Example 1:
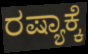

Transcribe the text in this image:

ರಷ್ಯಾಕ್ಕೆ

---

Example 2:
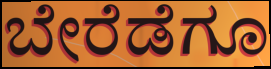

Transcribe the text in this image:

ಬೇರೆಡೆಗೂ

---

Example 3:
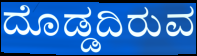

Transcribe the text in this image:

ದೊಡ್ಡದಿರುವ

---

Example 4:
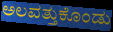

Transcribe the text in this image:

ಅಲವತ್ತುಕೊಂಡು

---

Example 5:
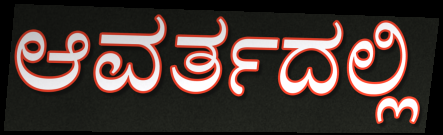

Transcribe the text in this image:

ಆವರ್ತದಲ್ಲಿ